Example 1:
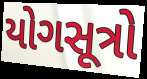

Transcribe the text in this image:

યોગસૂત્રો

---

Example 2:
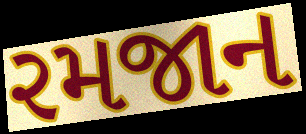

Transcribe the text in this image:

રમજાન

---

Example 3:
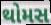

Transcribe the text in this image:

થોમસ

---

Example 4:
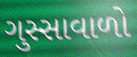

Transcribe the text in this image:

ગુસ્સાવાળો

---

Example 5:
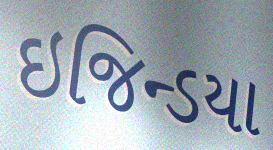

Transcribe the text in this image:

ઇજિન્ડયા